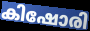
കിഷോരി